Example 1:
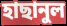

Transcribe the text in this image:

হাছানুল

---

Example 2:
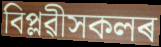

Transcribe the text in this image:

বিপ্লৱীসকলৰ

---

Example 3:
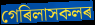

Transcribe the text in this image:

গেৰিলাসকলৰ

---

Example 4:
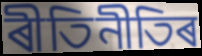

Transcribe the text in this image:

ৰীতিনীতিৰ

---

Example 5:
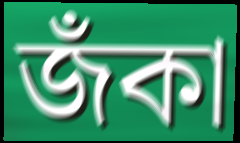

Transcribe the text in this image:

জঁকা